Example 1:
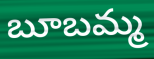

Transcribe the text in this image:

బూబమ్మ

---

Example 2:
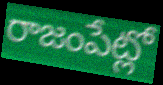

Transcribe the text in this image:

రాజంపేట్లో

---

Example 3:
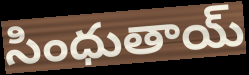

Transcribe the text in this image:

సింధుతాయ్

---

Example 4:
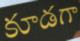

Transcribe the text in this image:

కూడగా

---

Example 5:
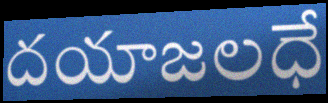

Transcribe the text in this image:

దయాజలధే